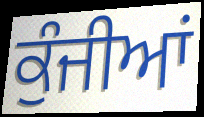
ਕੁੰਜੀਆਂ